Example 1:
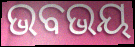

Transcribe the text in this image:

ଭବଭୟ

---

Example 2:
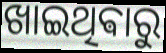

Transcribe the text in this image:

ଖାଇଥିଵାରୁ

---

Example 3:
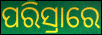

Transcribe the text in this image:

ପରିସ୍ରାରେ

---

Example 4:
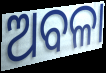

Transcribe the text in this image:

ଅବଳା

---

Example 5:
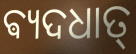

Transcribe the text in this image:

ଵ୍ୟଦଧାତ୍